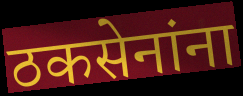
ठकसेनांना